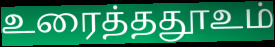
உரைத்ததூஉம்